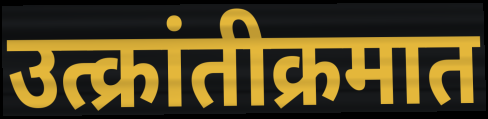
उत्क्रांतीक्रमात